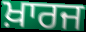
ਖ਼ਾਰਜ